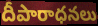
దీపారాధనలు